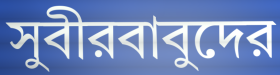
সুবীরবাবুদের